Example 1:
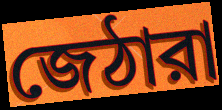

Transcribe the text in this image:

জেঠারা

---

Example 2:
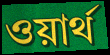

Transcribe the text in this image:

ওয়ার্থ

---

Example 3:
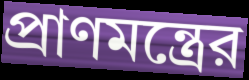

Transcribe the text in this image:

প্রাণমন্ত্রের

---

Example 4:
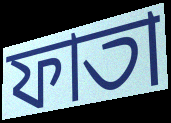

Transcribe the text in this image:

ফাতা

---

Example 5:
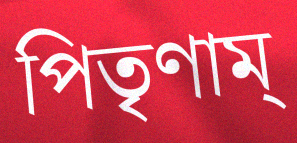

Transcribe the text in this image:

পিতৃণাম্